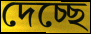
দেচ্ছে